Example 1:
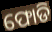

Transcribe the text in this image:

ଫୋଡି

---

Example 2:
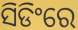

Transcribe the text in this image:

ସିଡିଂରେ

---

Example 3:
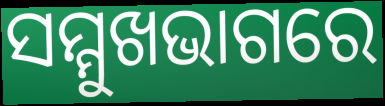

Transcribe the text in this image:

ସମ୍ମୁଖଭାଗରେ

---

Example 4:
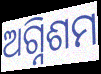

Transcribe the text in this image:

ଅଗ୍ନିଶମ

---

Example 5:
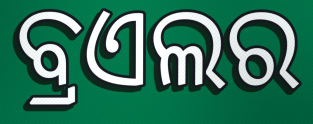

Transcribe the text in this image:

ବ୍ରଏଲର